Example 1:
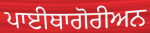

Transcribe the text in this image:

ਪਾਈਥਾਗੋਰੀਅਨ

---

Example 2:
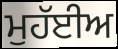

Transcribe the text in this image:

ਮੁਹੱਈਅ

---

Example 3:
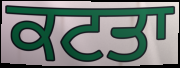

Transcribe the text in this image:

ਕਟਤਾ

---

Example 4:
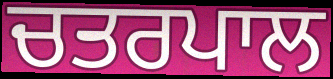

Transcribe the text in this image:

ਚਤਰਪਾਲ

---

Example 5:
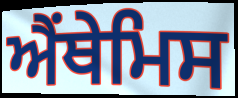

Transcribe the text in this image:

ਐਂਥੇਮਿਸ